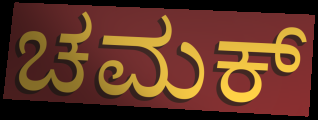
ಚಮಕ್